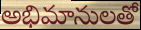
అభిమానులతో